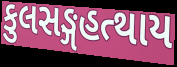
કુલસઙ્ગહત્થાય